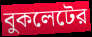
বুকলেটের